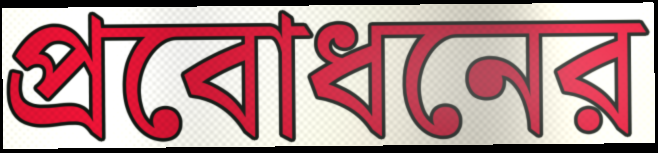
প্রবোধনের